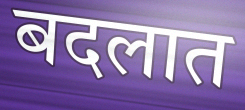
बदलात